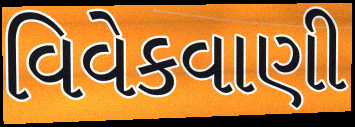
વિવેકવાણી